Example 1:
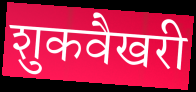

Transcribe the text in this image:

शुकवैखरी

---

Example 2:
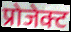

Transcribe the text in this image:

प्रोजेक्ट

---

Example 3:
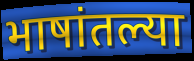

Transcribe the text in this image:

भाषांतल्या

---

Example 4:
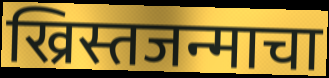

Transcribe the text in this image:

ख्रिस्तजन्माचा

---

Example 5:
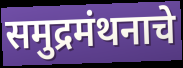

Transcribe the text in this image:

समुद्रमंथनाचे